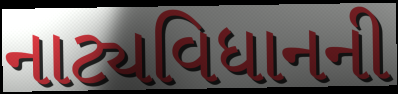
નાટ્યવિધાનની